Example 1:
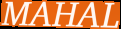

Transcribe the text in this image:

MAHAL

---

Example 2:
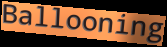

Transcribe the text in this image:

Ballooning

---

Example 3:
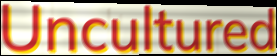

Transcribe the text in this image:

Uncultured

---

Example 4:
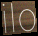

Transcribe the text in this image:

ilo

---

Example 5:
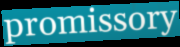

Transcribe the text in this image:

promissory